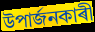
উপাৰ্জনকাৰী